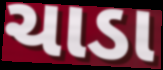
ચાડા